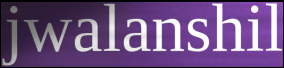
jwalanshil